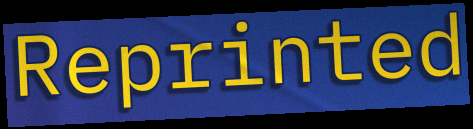
Reprinted